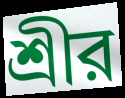
শ্রীর